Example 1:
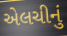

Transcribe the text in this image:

એલચીનું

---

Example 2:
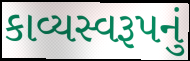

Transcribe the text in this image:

કાવ્યસ્વરૂપનું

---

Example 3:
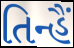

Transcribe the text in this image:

તિન્હૈં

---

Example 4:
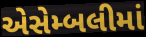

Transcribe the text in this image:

એસેમ્બલીમાં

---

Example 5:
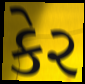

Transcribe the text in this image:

કેર